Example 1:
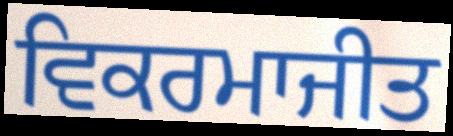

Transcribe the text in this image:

ਵਿਕਰਮਾਜੀਤ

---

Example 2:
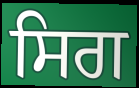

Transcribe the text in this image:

ਸਿਗ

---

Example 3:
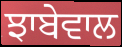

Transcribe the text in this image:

ਝਾਬੇਵਾਲ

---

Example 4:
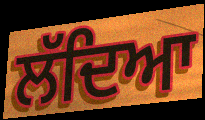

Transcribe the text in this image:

ਲੱਦਿਆ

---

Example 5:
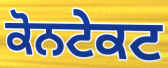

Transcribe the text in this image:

ਕੋਨਟੇਕਟ